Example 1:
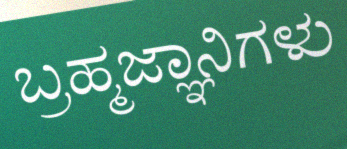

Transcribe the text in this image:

ಬ್ರಹ್ಮಜ್ಞಾನಿಗಳು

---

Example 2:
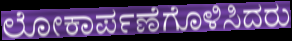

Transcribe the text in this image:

ಲೋಕಾರ್ಪಣೆಗೊಳಿಸಿದರು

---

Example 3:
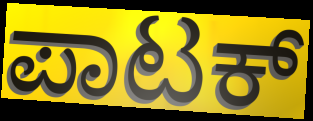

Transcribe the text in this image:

ಪಾಟಕ್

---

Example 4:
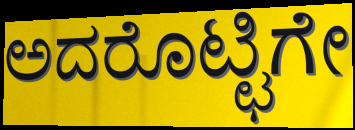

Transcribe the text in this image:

ಅದರೊಟ್ಟಿಗೇ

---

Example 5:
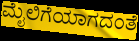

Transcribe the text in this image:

ಮೈಲಿಗೆಯಾಗದಂತೆ